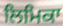
ਲਿਮਿਕਾ